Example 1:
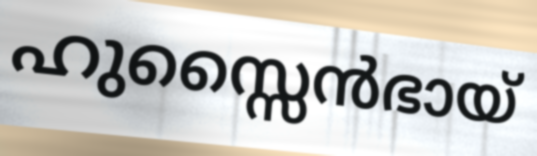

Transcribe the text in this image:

ഹുസ്സൈൻഭായ്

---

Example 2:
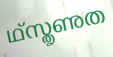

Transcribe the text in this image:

ഥ്സ്തൃണുത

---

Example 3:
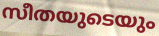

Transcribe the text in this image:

സീതയുടെയും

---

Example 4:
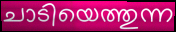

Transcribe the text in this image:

ചാടിയെത്തുന്ന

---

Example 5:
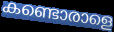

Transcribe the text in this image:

കണ്ടൊരാളെ